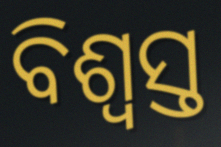
ବିଶ୍ୱସ୍ତ